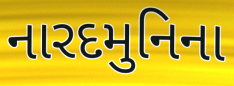
નારદમુનિના